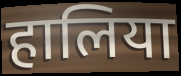
हालिया